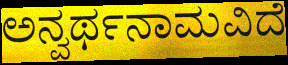
ಅನ್ವರ್ಥನಾಮವಿದೆ